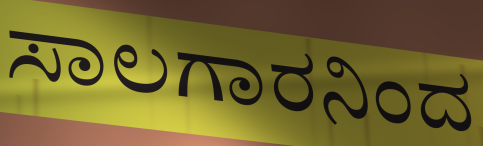
ಸಾಲಗಾರನಿಂದ